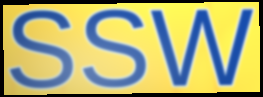
SSW